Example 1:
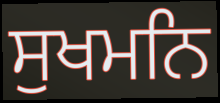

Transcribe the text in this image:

ਸੁਖਮਨਿ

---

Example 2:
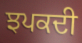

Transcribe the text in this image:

ਝਪਕਦੀ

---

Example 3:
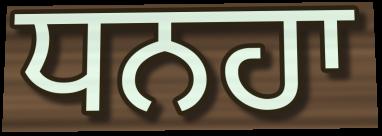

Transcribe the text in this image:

ਧਨਹਾ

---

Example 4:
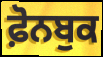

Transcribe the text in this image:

ਫ਼ੋਨਬੁਕ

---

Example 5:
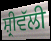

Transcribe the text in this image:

ਸ਼੍ਰੀਵੱਲੀ